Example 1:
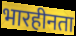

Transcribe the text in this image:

भारहीनता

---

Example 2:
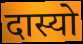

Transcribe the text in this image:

दास्यो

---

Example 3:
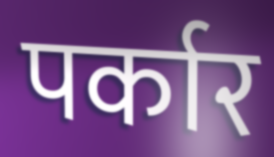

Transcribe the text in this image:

पर्कार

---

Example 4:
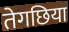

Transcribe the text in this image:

तेगछिया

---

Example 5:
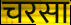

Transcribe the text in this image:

चरसा